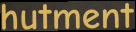
hutment